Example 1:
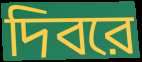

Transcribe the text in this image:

দিবরে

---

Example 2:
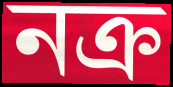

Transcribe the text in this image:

নক্র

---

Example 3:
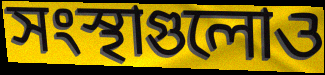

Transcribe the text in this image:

সংস্থাগুলোও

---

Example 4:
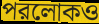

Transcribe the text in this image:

পরলোকও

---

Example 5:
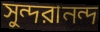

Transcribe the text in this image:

সুন্দরানন্দ